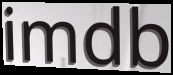
imdb